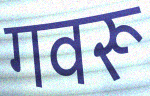
गवरू